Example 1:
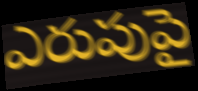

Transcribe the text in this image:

ఎరుపుపై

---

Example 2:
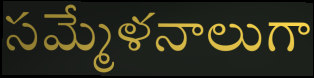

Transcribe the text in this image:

సమ్మేళనాలుగా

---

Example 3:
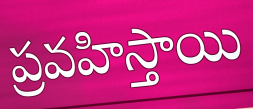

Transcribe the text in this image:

ప్రవహిస్తాయి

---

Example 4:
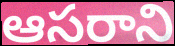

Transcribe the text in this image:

ఆసరాని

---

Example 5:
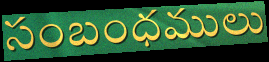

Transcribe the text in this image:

సంబంధములు